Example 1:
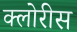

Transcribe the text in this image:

क्लोरीस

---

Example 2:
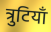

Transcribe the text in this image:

त्रुटियाँ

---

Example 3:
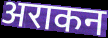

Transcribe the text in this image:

अराकन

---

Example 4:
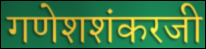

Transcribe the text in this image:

गणेशशंकरजी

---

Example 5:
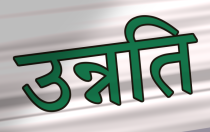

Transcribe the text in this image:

उन्नति